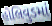
હોલિવુડમાં